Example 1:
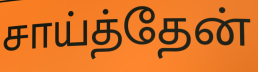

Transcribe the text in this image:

சாய்த்தேன்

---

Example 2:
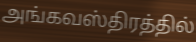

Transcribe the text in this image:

அங்கவஸ்திரத்தில்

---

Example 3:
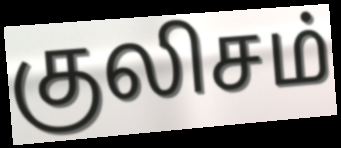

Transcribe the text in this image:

குலிசம்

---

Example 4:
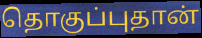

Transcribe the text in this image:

தொகுப்புதான்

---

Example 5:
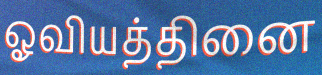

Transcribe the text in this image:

ஓவியத்தினை